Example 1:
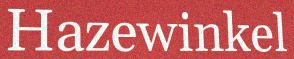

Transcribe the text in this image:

Hazewinkel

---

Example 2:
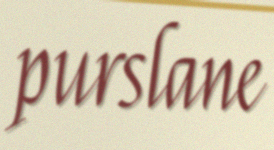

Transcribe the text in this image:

purslane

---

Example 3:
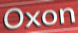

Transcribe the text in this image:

Oxon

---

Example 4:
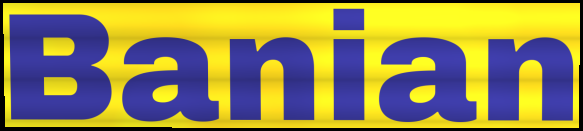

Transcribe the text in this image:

Banian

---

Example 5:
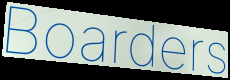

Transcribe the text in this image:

Boarders